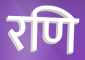
रणि